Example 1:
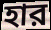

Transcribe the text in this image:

হার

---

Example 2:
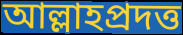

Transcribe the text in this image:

আল্লাহপ্রদত্ত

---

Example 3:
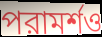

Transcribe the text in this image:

পরামর্শও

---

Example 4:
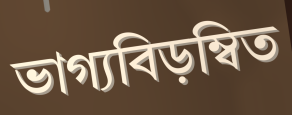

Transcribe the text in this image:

ভাগ্যবিড়ম্বিত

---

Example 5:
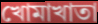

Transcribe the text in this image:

খোমাখাতা